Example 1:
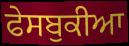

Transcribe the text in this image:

ਫੇਸਬੁਕੀਆ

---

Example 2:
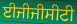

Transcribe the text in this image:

ਈਜੀਜੀਸੀਟੀ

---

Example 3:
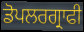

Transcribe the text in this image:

ਡੋਪਲਰਗ੍ਰਾਫੀ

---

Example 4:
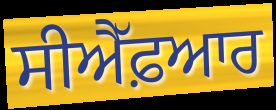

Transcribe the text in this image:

ਸੀਐੱਫ਼ਆਰ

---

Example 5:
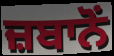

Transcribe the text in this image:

ਜ਼ਬਾਨੋਂ